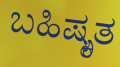
ಬಹಿಷ್ಕೃತ